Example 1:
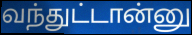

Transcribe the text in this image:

வந்துட்டான்னு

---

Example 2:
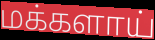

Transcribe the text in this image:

மக்களாய்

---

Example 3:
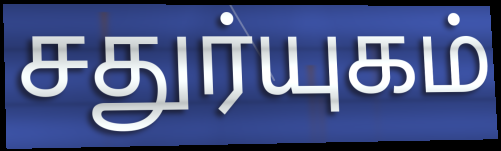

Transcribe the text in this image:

சதுர்யுகம்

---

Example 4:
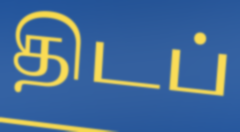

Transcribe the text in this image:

திடப்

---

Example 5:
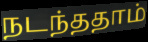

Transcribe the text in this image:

நடந்ததாம்